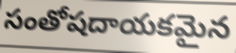
సంతోషదాయకమైన